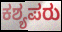
ಕಶ್ಯಪರು